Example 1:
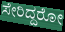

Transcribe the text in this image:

ಸೇರಿದ್ದರೋ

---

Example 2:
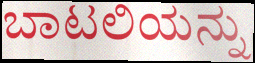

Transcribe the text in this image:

ಬಾಟಲಿಯನ್ನು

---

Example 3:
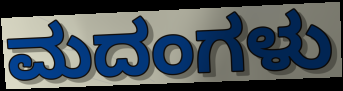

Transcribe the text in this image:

ಮದಂಗಳು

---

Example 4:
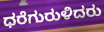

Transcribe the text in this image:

ಧರೆಗುರುಳಿದರು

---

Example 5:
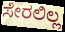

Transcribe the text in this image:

ಸೇರಲಿಲ್ಲ